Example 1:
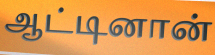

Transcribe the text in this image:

ஆட்டினான்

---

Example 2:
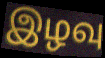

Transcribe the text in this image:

இழவு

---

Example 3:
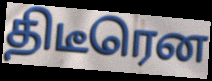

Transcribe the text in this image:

திடீரென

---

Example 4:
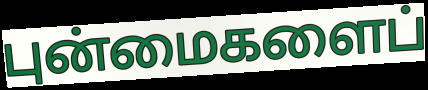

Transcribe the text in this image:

புன்மைகளைப்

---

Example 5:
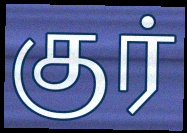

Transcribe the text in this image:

குர்